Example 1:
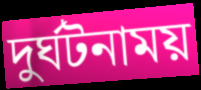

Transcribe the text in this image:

দুর্ঘটনাময়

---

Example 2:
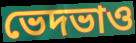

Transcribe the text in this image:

ভেদভাও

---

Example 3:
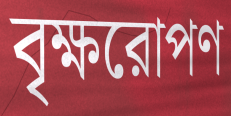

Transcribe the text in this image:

বৃক্ষরোপণ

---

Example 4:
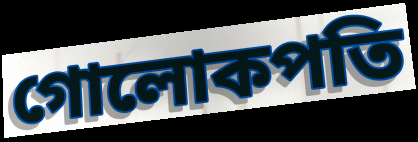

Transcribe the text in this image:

গোলোকপতি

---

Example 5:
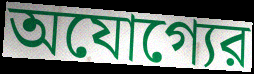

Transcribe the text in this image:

অযোগ্যের